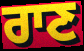
ਰਾਣ